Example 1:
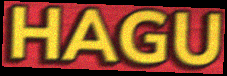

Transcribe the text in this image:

HAGU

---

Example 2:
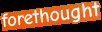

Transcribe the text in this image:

forethought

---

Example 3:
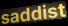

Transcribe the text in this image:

saddist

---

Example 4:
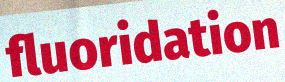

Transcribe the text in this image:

fluoridation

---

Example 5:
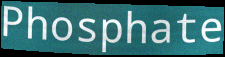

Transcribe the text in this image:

Phosphate